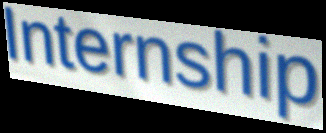
Internship